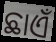
ଛାଏଁ